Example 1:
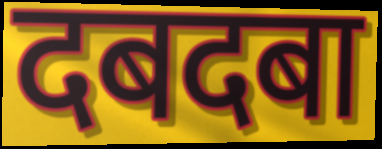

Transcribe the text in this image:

दबदबा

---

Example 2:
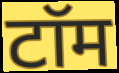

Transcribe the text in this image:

टॉम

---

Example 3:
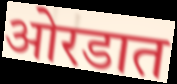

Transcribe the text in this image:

ओरडात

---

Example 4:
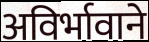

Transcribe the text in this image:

अविर्भावाने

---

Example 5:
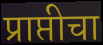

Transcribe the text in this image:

प्राप्तीचा